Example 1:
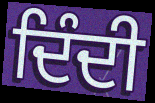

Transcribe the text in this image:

ਦਿੰਦੀ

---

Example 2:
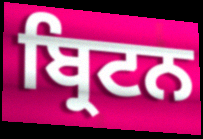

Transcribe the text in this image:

ਬ੍ਰਿਟਨ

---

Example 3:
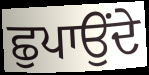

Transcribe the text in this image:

ਛੁਪਾਉਂਦੇ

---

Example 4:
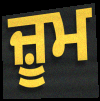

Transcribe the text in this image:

ਜ਼ੂਮ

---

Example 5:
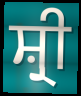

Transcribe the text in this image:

ਸ਼੍ਰੀ